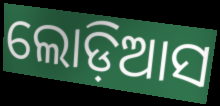
ଲୋଡ଼ିଆସ